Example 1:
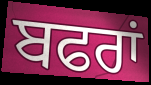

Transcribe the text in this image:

ਬਫਰਾਂ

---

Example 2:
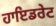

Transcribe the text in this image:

ਹਾਇਡਰੇਟ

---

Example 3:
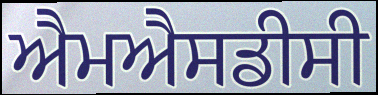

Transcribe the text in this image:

ਐਮਐਸਡੀਸੀ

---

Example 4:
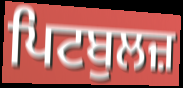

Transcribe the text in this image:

ਪਿਟਬੁਲਜ਼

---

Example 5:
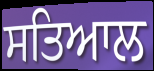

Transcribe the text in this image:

ਸਤਿਆਲ